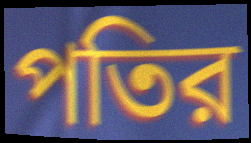
পতির